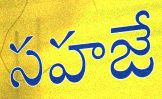
సహజే